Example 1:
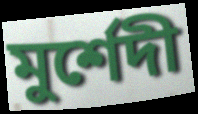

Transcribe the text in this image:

মুর্শেদী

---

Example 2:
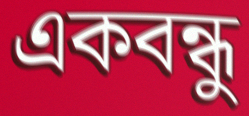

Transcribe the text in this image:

একবন্ধু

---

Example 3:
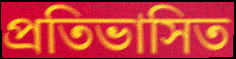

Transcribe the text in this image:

প্রতিভাসিত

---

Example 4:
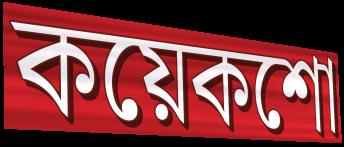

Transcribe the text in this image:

কয়েকশো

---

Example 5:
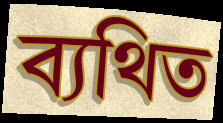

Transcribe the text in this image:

ব্যথিত